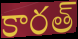
కారత్